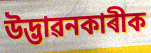
উদ্ভাৱনকাৰীক